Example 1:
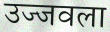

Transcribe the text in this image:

उज्‍जवला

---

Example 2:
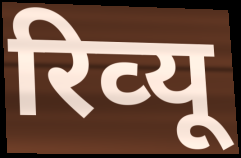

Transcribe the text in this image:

रिव्‍यू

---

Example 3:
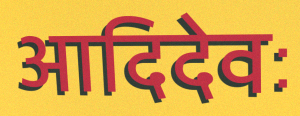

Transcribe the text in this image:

आदिदेवः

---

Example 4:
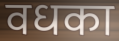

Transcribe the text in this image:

वधका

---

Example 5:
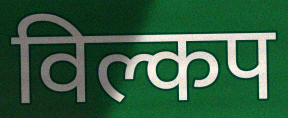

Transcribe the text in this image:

विल्कप